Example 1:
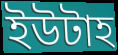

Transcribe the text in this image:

ইউটাহ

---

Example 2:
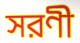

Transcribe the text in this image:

সরণী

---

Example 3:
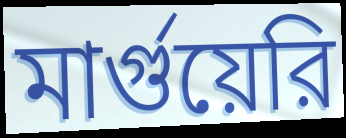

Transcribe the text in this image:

মার্গুয়েরি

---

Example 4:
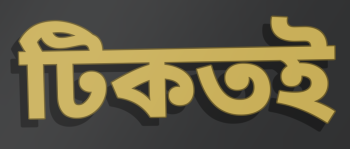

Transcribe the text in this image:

টিকতই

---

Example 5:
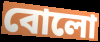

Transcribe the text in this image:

বোলো